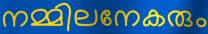
നമ്മിലനേകരും